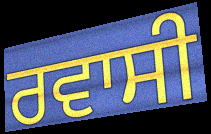
ਰਵਾਸੀ